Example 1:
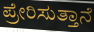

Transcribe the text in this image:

ಪ್ರೇರಿಸುತ್ತಾನೆ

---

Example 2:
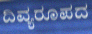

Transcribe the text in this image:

ದಿವ್ಯರೂಪದ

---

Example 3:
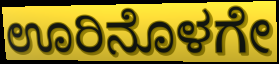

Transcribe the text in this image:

ಊರಿನೊಳಗೇ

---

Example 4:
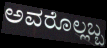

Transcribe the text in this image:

ಅವರೊಲ್ಲಬ್ಬ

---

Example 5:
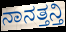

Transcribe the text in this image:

ನಾನತ್ತನ್ತಿ